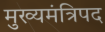
मुख्यमंत्रिपद